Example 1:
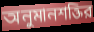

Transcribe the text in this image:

অনুমানশক্তির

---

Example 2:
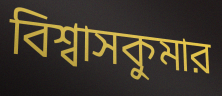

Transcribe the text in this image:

বিশ্বাসকুমার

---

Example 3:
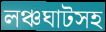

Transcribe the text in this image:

লঞ্চঘাটসহ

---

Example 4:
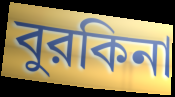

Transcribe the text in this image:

বুরকিনা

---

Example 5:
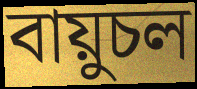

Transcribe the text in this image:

বায়ুচল